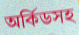
অর্কিডসহ